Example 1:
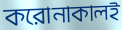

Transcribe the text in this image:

করোনাকালই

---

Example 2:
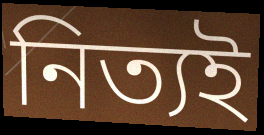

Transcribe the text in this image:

নিত্যই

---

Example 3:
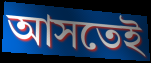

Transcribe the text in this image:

আসতেই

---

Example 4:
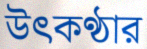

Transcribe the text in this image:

উৎকণ্ঠার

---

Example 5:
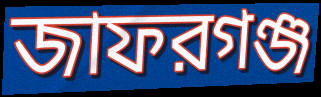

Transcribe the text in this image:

জাফরগঞ্জ